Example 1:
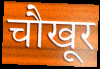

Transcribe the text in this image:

चौखूर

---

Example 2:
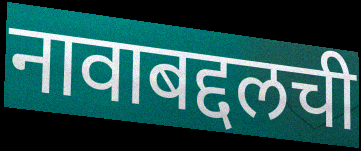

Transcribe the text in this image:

नावाबद्दलची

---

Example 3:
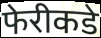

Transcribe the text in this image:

फेरीकडे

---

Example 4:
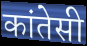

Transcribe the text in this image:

कांतेसी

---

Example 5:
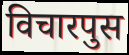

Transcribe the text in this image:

विचारपुस